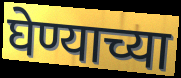
घेण्याच्या